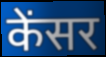
केंसर